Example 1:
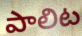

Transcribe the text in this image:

పాలిట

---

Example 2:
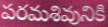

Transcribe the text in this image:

పరమశివునికి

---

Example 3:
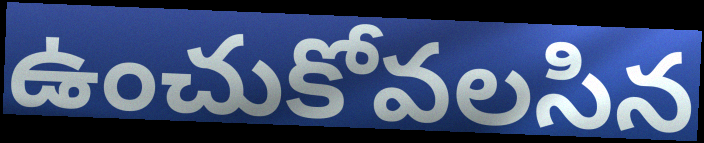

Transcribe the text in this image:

ఉంచుకోవలసిన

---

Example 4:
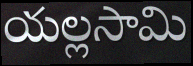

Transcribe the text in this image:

యల్లసామి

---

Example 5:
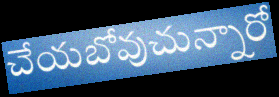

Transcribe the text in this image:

చేయబోవుచున్నారో